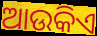
ଆଉକିଏ